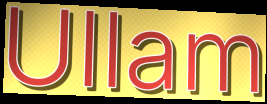
Ullam